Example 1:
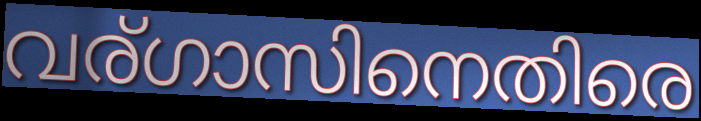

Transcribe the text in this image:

വര്ഗാസിനെതിരെ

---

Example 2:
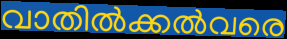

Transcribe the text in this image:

വാതിൽക്കൽവരെ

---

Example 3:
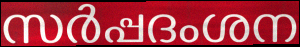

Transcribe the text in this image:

സർപ്പദംശന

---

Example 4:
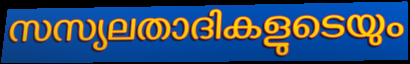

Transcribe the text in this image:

സസ്യലതാദികളുടെയും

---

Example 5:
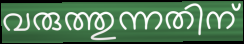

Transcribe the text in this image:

വരുത്തുന്നതിന്